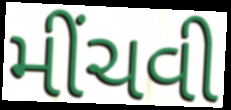
મીંચવી